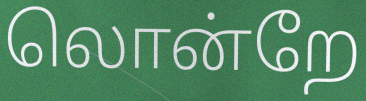
லொன்றே